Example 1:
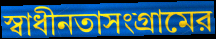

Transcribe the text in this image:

স্বাধীনতাসংগ্রামের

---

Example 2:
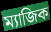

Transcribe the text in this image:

ম্যাজিক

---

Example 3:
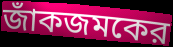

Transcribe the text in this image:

জাঁকজমকের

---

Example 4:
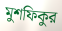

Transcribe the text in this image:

মুশফিকুর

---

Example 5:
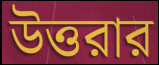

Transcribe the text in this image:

উত্তরার